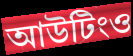
আউটিংও